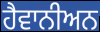
ਹੈਵਾਨੀਅਨ